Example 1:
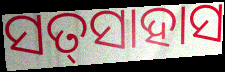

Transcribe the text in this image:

ସତ୍‌ସାହାସ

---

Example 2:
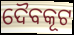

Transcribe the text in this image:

ଦୈବକୂଟ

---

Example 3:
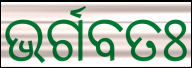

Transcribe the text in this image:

ଭର୍ଗବତଃ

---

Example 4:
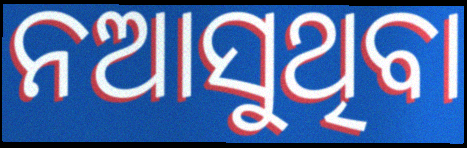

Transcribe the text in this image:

ନଆସୁଥିବା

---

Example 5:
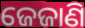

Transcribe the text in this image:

ଜେଜାଣି